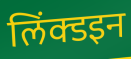
लिंक्डइन